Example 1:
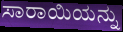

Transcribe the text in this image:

ಸಾರಾಯಿಯನ್ನು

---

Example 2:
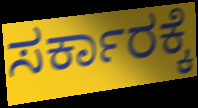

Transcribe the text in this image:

ಸರ್ಕಾರಕ್ಕೆ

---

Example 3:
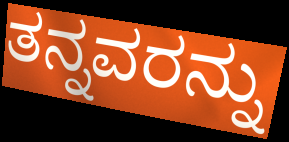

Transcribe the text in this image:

ತನ್ನವರನ್ನು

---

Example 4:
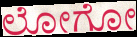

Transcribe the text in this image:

ಲೋಗೋ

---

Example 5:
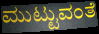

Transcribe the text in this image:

ಮುಟ್ಟುವಂತೆ